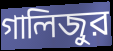
গালিজুর